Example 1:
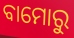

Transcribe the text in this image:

ବାମୋରୁ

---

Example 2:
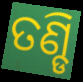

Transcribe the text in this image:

ତଣ୍ଡି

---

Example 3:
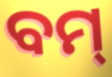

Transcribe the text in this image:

ବମ୍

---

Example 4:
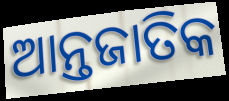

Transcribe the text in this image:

ଆନ୍ତଜାତିକ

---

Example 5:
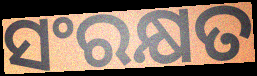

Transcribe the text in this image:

ସଂରକ୍ଷତ